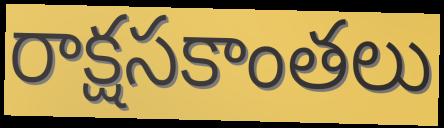
రాక్షసకాంతలు